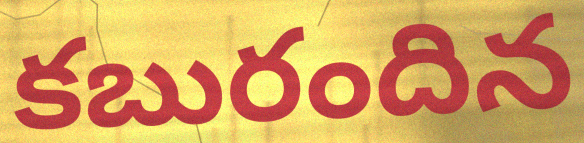
కబురందిన